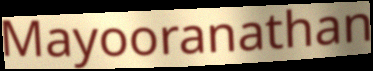
Mayooranathan